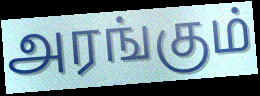
அரங்கும்